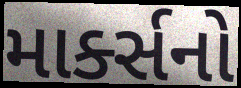
માર્ક્સનો